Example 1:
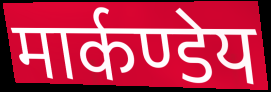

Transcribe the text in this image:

मार्कण्डेय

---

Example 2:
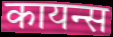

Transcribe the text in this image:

कायन्स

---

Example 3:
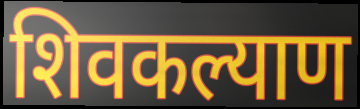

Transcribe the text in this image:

शिवकल्याण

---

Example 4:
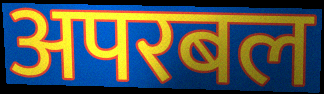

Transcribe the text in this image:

अपरबल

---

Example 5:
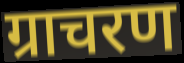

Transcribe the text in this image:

ग्राचरण